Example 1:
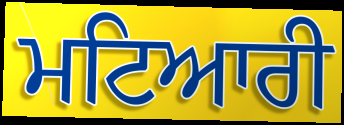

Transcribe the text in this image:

ਮਟਿਆਰੀ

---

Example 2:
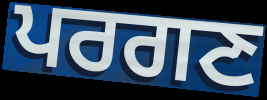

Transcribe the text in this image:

ਪਰਗਣ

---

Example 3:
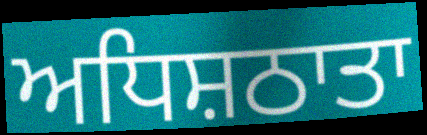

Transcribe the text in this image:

ਅਧਿਸ਼ਠਾਤਾ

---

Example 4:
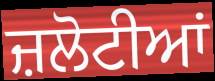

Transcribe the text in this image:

ਜ਼ਲੋਟੀਆਂ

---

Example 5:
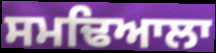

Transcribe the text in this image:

ਸਮਢਿਆਲਾ